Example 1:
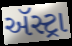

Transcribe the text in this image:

ઍસ્ટ્રા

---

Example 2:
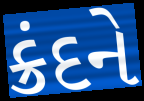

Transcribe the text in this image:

ક્રંદને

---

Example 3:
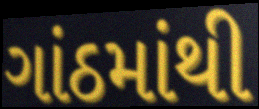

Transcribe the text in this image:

ગાંઠમાંથી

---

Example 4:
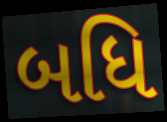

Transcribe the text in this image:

બધિ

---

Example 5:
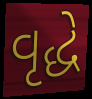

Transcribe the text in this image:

વૃદ્ધે